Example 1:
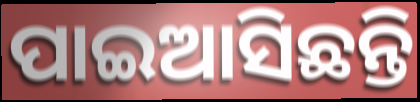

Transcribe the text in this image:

ପାଇଆସିଛନ୍ତି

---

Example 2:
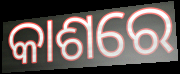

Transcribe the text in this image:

କାଶରେ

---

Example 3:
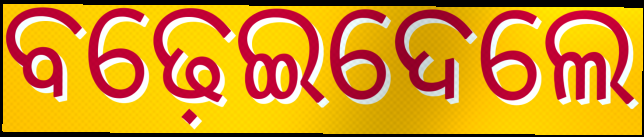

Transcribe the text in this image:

ବଢ଼େଇଦେଲେ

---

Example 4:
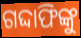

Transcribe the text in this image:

ଗଦ୍ଦାଫିଙ୍କୁ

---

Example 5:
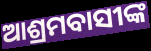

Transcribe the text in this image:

ଆଶ୍ରମବାସୀଙ୍କ